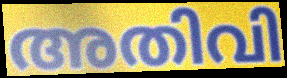
അതിവി